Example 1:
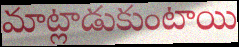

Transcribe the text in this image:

మాట్లాడుకుంటాయి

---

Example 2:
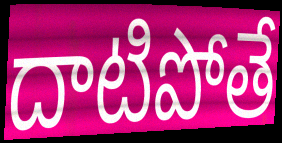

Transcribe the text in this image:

దాటిపోతే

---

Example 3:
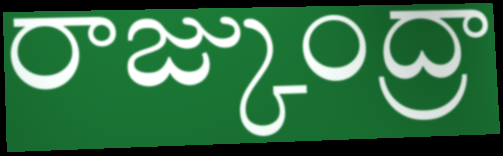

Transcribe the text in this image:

రాజ్కుంద్రా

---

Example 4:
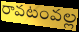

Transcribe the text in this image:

రావటంవల్ల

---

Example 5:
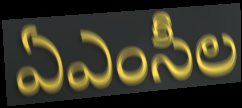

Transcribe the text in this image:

ఏఎంసీల